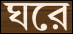
ঘরে